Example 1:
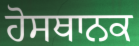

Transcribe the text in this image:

ਹੋਸਥਾਨਕ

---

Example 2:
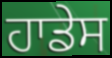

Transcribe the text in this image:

ਹਾਡੇਸ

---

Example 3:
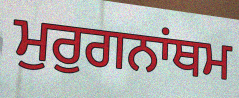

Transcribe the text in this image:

ਮੁਰੁਗਨਾਂਥਮ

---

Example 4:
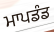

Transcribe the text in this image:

ਮਾਪਡੰਡ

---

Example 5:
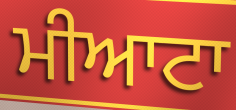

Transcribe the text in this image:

ਮੀਆਟਾ